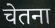
चेतना